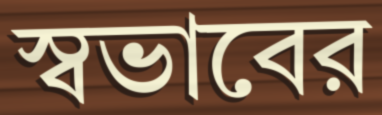
স্বভাবের